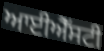
ਆਈਐੱਸਟੀ